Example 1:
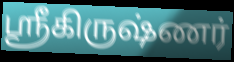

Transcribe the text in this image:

ஶ்ரீகிருஷ்ணர்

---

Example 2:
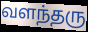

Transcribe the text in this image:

வளந்தரு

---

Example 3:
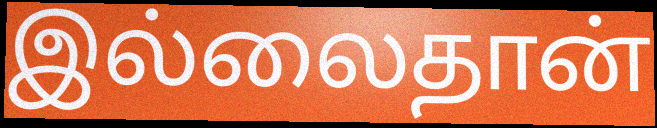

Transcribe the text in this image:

இல்லைதான்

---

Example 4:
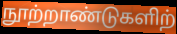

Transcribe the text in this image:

நூற்றாண்டுகளிற்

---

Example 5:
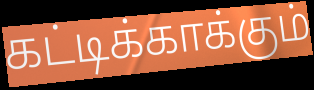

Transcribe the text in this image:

கட்டிக்காக்கும்